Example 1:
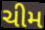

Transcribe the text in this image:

ચીમ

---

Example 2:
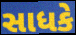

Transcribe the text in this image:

સાધકે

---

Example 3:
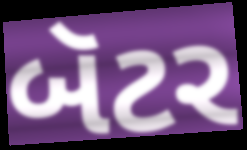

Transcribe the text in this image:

બૅટર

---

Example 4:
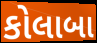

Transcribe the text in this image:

કોલાબા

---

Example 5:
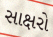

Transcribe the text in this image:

સાક્ષરો